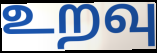
உறவு